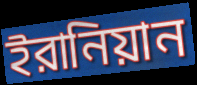
ইরানিয়ান